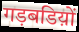
गड़बडिय़ों